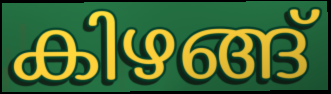
കിഴങ്ങ്